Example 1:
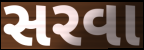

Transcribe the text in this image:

સરવા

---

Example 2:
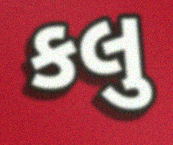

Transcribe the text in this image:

કલુ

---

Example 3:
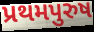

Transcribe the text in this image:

પ્રથમપુરુષ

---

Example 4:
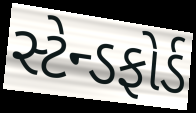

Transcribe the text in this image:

સ્ટેન્ડફોર્ડ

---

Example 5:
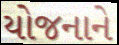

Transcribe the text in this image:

યોજનાને